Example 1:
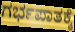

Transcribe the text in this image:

ಗರ್ಭಪಾತಕ್ಕೆ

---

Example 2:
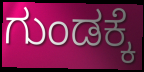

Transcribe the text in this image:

ಗುಂಡಕ್ಕೆ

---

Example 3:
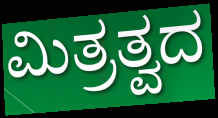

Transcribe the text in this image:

ಮಿತ್ರತ್ವದ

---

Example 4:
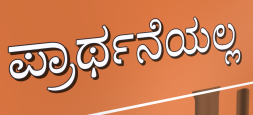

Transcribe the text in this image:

ಪ್ರಾರ್ಥನೆಯಲ್ಲ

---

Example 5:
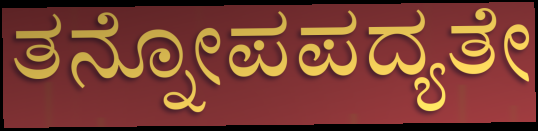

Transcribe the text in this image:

ತನ್ನೋಪಪದ್ಯತೇ